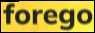
forego